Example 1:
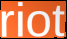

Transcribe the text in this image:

riot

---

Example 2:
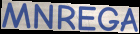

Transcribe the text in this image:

MNREGA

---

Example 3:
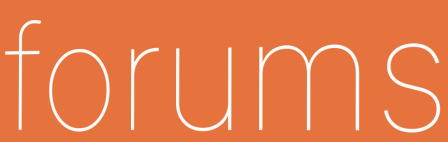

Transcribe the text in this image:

forums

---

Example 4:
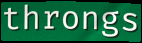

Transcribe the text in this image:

throngs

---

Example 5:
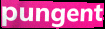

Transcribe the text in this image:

pungent